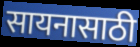
सायनासाठी